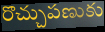
రొచ్చుపణుకు